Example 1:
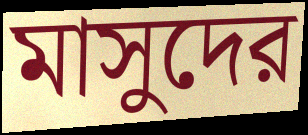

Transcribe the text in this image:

মাসুদের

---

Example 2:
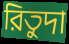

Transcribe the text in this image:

রিতুদা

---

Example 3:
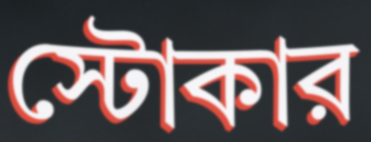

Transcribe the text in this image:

স্টোকার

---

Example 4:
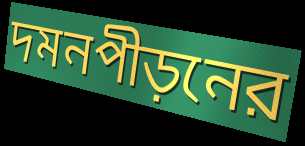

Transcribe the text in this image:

দমনপীড়নের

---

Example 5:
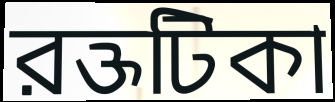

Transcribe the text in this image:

রক্তটিকা